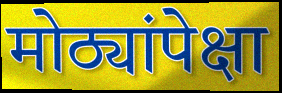
मोठ्यांपेक्षा